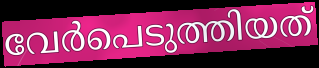
വേർപെടുത്തിയത്